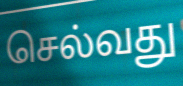
செல்வது